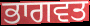
ਭਾਗਵਤ